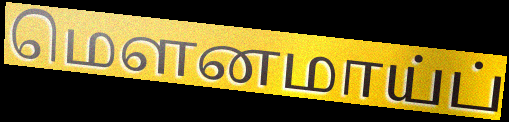
மௌனமாய்ப்